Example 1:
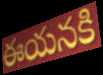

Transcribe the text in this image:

ఈయనకి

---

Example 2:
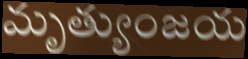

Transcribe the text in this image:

మృత్యుంజయ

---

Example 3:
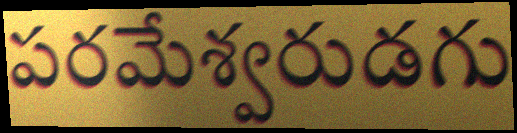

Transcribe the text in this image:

పరమేశ్వరుడగు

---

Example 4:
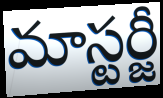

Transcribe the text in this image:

మాస్టర్జీ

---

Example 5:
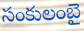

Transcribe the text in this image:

సంకులంబై